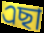
এছা